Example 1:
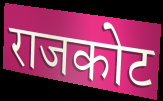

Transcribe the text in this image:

राजकोट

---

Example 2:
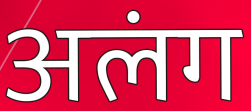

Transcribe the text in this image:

अलंग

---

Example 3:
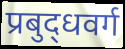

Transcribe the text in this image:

प्रबुद्धवर्ग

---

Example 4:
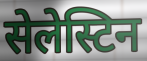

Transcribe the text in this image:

सेलेस्टिन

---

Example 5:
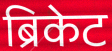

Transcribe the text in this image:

ब्रिकेट